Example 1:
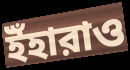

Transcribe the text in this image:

ইঁহারাও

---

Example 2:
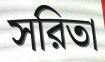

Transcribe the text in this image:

সরিতা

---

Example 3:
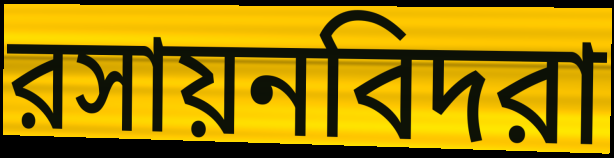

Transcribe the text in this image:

রসায়নবিদরা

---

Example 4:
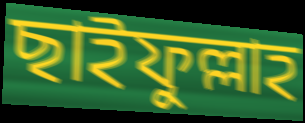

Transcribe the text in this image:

ছাইফুল্লাহ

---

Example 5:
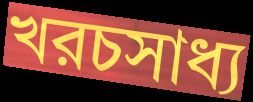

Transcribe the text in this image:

খরচসাধ্য